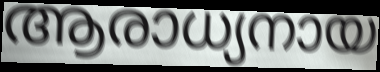
ആരാധ്യനായ